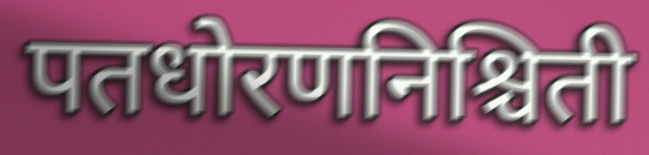
पतधोरणनिश्चिती